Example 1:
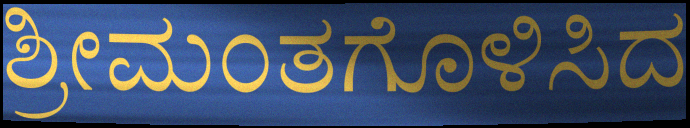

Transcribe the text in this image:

ಶ್ರೀಮಂತಗೊಳಿಸಿದ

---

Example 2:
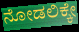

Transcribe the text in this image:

ನೋಡಲಿಕ್ಕೇ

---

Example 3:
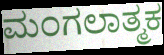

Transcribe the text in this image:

ಮಂಗಲಾತ್ಮಕ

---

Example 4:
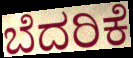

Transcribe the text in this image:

ಬೆದರಿಕೆ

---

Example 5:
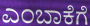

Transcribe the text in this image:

ಎಂಬಾಕೆಗೆ